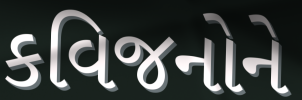
કવિજનોને